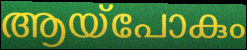
ആയ്പോകും